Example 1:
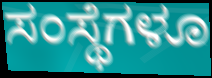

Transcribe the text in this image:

ಸಂಸ್ಥೆಗಳೂ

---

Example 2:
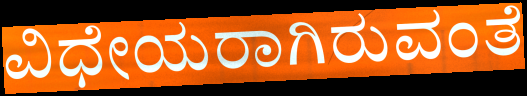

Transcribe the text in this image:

ವಿಧೇಯರಾಗಿರುವಂತೆ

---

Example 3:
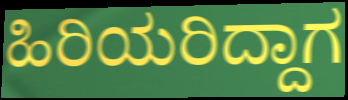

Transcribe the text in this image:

ಹಿರಿಯರಿದ್ದಾಗ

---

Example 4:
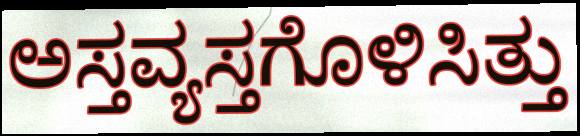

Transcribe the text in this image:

ಅಸ್ತವ್ಯಸ್ತಗೊಳಿಸಿತ್ತು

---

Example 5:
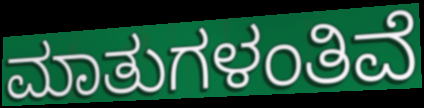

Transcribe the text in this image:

ಮಾತುಗಳಂತಿವೆ